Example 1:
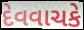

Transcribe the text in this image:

દેવવાચકે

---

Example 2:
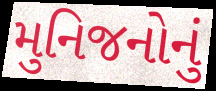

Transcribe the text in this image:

મુનિજનોનું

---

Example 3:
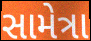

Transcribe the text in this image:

સામેત્રા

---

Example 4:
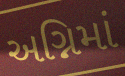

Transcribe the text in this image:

અગ્નિમાં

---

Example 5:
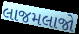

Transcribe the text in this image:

લાજમલાજો